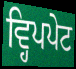
ਵ੍ਹਿਪਪੇਟ